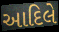
આદિલે